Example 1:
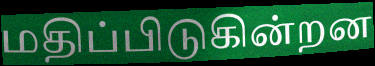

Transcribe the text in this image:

மதிப்பிடுகின்றன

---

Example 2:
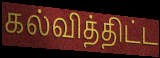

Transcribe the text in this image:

கல்வித்திட்ட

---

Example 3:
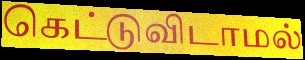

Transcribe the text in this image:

கெட்டுவிடாமல்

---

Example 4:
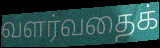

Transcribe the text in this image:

வளர்வதைக்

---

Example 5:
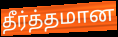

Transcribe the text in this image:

தீர்த்தமான